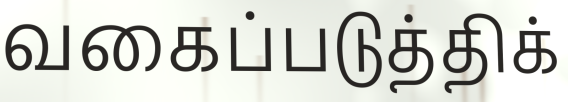
வகைப்படுத்திக்